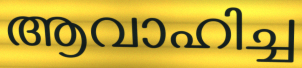
ആവാഹിച്ച